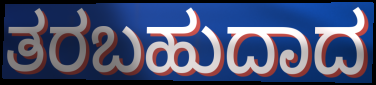
ತರಬಹುದಾದ